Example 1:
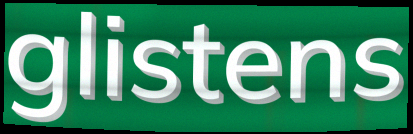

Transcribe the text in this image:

glistens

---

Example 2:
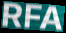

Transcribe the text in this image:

RFA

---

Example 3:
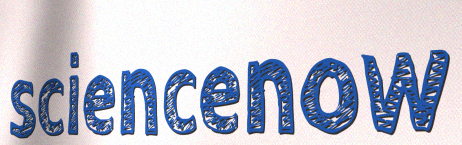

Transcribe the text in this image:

sciencenow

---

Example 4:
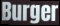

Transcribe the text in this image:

Burger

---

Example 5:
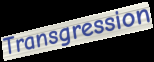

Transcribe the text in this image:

Transgression